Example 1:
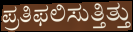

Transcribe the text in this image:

ಪ್ರತಿಫಲಿಸುತ್ತಿತ್ತು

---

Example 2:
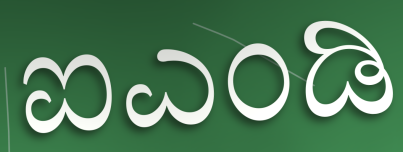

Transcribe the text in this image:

ಐಎಂಡಿ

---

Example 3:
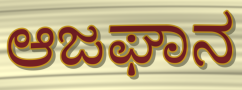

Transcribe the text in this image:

ಆಜಘಾನ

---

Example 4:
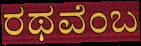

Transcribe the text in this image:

ರಥವೆಂಬ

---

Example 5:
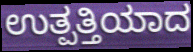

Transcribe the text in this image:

ಉತ್ಪತ್ತಿಯಾದ